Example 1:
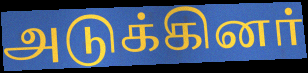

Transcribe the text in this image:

அடுக்கினர்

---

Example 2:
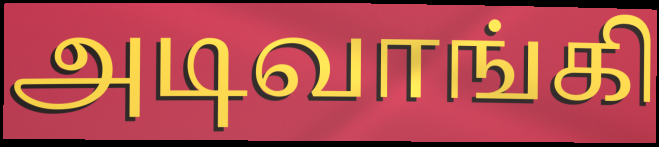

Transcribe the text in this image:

அடிவாங்கி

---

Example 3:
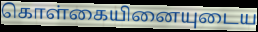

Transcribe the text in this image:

கொள்கையினையுடைய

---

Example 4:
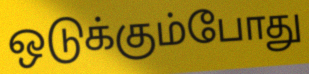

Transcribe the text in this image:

ஒடுக்கும்போது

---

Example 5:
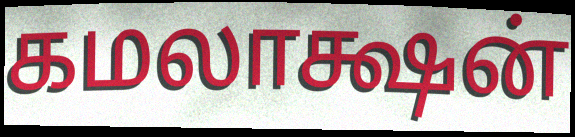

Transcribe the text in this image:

கமலாக்ஷன்